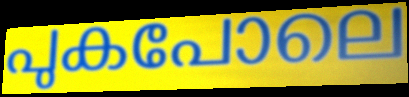
പുകപോലെ